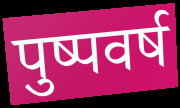
पुष्पवर्ष